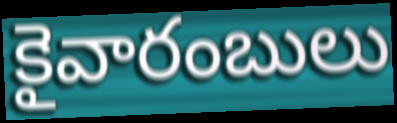
కైవారంబులు